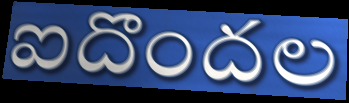
ఐదొందల